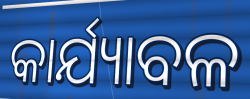
କାର୍ଯ୍ୟାବଳ